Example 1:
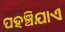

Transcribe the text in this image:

ପହଞ୍ଚିଯାଏ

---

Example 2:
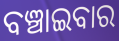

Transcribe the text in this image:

ବଞ୍ଚାଇବାର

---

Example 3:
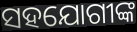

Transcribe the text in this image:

ସହଯୋଗୀଙ୍କ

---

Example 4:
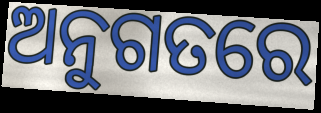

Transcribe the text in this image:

ଅନୁଗତରେ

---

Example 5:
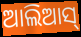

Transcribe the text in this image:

ଆଲିଆସ୍